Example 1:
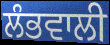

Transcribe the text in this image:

ਲੰਭਵਾਲੀ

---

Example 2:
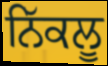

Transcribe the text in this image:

ਨਿੱਕਲੂ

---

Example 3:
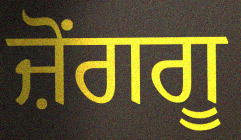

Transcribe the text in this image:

ਜ਼ੋਂਗਗੂ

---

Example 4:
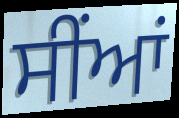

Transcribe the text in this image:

ਸੀਂਆਂ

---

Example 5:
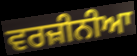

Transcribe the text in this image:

ਵਰਜ਼ੀਨੀਆ